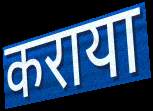
कराया